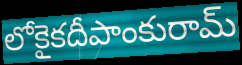
లోకైకదీపాంకురామ్